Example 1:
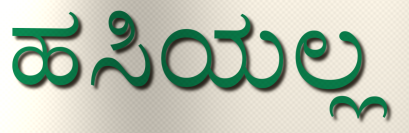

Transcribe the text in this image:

ಹಸಿಯಲ್ಲ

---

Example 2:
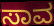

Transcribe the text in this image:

ಸಾವ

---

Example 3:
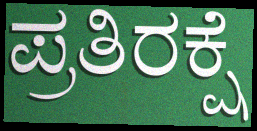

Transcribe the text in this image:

ಪ್ರತಿರಕ್ಷೆ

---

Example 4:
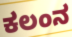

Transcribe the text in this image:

ಕಲಂನ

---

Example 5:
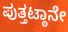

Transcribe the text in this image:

ಪುತ್ತಟ್ಠಾನೇ